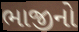
ભાજીનો